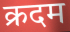
क्रदम